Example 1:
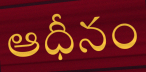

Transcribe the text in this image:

ఆధీనం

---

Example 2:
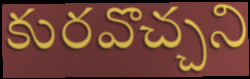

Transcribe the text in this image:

కురవొచ్చని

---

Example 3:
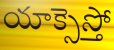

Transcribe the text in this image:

యాక్సెస్తో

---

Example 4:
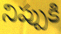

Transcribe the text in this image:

నిప్పుకి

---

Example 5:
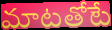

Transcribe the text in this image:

మాటతోటే